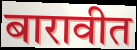
बारावीत